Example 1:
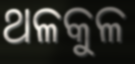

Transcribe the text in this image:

ଥଳକୁଳ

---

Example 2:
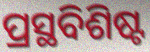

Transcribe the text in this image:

ପ୍ରସ୍ଥବିଶିଷ୍ଟ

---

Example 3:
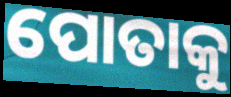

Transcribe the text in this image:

ପୋତାକୁ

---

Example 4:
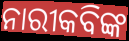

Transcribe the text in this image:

ନାରୀକବିଙ୍କ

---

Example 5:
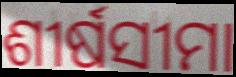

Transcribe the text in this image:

ଶୀର୍ଷସୀମା